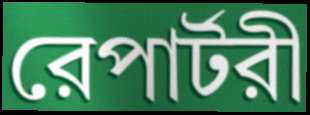
রেপার্টরী